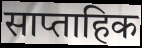
साप्‍ताहिक